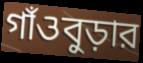
গাঁওবুড়ার